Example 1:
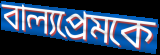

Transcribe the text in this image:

বাল্যপ্রেমকে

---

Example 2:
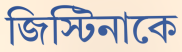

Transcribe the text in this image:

জিস্টিনাকে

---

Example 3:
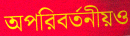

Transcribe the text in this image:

অপরিবর্তনীয়ও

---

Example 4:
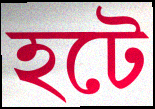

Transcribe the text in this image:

হটে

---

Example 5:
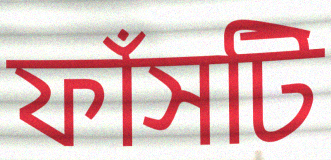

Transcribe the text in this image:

ফাঁসটি